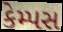
કેમ્પસ